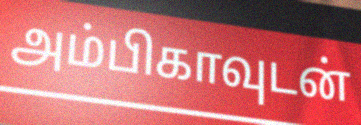
அம்பிகாவுடன்